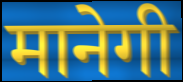
मानेगी